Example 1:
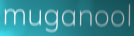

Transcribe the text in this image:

muganool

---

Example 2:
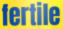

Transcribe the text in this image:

fertile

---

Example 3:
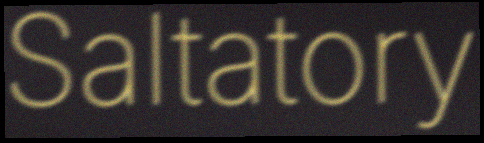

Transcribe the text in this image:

Saltatory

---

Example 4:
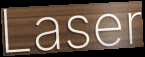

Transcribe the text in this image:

Laser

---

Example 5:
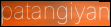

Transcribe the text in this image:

patangiyan